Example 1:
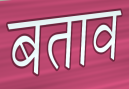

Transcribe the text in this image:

बताव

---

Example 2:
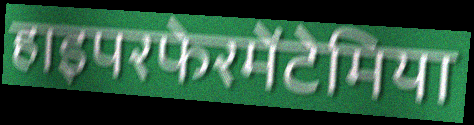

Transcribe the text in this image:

हाइपरफेरमेंटेमिया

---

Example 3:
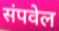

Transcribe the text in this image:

संपवेल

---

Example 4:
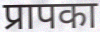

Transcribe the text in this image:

प्रापका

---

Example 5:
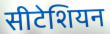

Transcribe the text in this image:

सीटेशियन